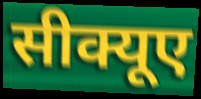
सीक्यूए